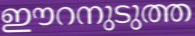
ഈറനുടുത്ത